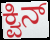
ಕ್ವಿನ್